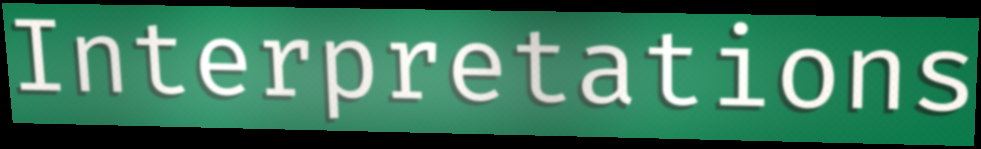
Interpretations